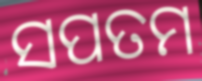
ସପତମ